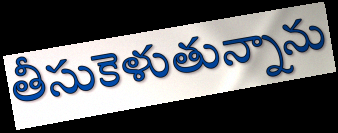
తీసుకెళుతున్నాను